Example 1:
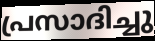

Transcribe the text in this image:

പ്രസാദിച്ചു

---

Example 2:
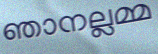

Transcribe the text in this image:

ഞാനല്ലമ്മ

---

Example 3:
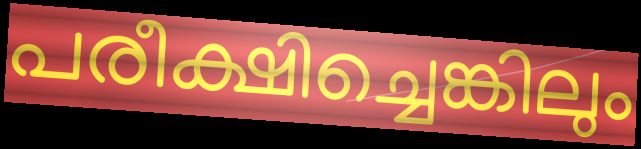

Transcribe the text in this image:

പരീക്ഷിച്ചെങ്കിലും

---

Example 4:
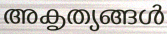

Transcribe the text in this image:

അകൃത്യങ്ങൾ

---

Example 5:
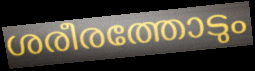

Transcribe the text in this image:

ശരീരത്തോടും